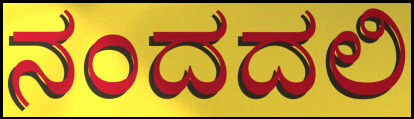
ನಂದದಲಿ